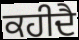
ਕਹੀਦੈ